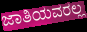
ಜಾತಿಯವರಲ್ಲ